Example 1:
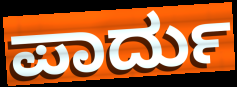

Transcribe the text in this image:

ಪಾರ್ದು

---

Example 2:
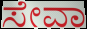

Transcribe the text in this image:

ಸೇವಾ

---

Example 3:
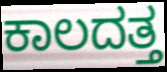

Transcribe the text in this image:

ಕಾಲದತ್ತ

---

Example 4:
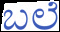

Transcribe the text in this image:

ಬಲೆ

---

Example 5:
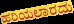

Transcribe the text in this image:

ಹರಿಯಲಾರದು